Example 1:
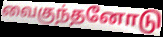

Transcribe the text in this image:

வைகுந்தனோடு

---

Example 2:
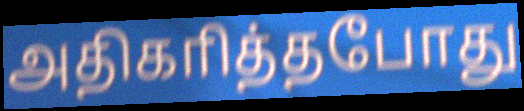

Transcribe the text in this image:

அதிகரித்தபோது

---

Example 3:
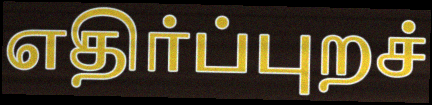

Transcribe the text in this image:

எதிர்ப்புறச்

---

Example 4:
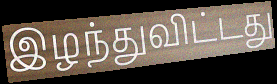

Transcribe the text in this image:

இழந்துவிட்டது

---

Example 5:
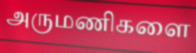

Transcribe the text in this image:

அருமணிகளை